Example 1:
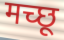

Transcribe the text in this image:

मच्छू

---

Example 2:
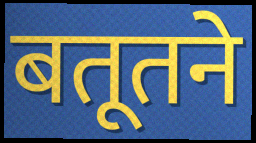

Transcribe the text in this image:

बतूतने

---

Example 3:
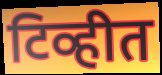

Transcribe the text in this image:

टिव्हीत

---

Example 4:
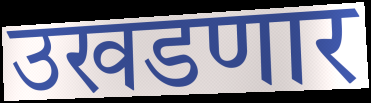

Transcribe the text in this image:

उखडणार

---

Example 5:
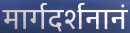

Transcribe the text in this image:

मार्गदर्शनानं